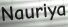
Nauriya